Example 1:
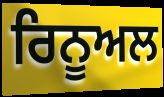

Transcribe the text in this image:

ਰਿਨੂਅਲ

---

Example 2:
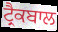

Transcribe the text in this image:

ਟ੍ਰੈਕਬਾਲ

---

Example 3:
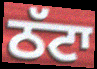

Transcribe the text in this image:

ਠੱਟਾ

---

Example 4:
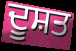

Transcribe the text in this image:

ਦੂਸ਼ਤ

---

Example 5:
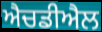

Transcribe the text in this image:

ਐਚਡੀਐਲ